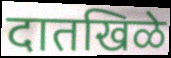
दातखिळे